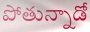
పోతున్నాడో